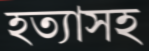
হত্যাসহ